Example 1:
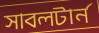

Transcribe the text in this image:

সাবলটার্ন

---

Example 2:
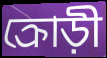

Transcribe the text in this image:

ক্রোড়ী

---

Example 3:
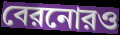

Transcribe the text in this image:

বেরনোরও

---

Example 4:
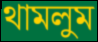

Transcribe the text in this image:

থামলুম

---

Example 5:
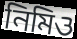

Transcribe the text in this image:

নিমিও